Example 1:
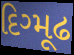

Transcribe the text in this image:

દિગ્મૂઢ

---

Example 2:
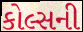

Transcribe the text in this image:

કોલ્સની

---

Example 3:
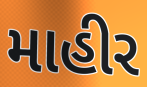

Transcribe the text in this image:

માહીર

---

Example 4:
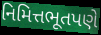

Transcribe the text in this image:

નિમિત્તભૂતપણે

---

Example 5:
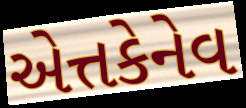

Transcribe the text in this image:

એત્તકેનેવ